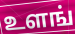
உளங்